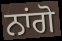
ਨਾਂਗੋ